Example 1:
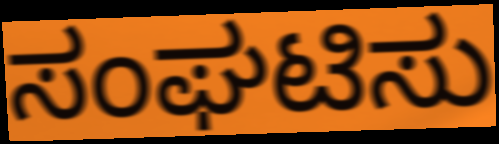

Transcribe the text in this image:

ಸಂಘಟಿಸು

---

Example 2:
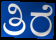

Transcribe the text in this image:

ತಿರೆ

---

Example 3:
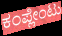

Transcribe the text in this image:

ಕಂಪ್ಲೇಂಟು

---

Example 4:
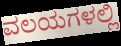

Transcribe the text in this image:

ವಲಯಗಳಲ್ಲಿ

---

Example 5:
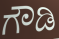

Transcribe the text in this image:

ಗೌಡಿ